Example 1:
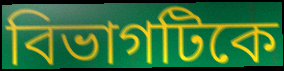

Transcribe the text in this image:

বিভাগটিকে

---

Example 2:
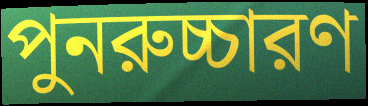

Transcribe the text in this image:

পুনরুচ্চারণ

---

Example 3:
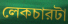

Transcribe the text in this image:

লেকচারটা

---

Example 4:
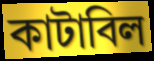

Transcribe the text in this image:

কাটাবিল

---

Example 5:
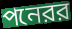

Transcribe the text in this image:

পনেরর